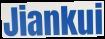
Jiankui